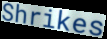
Shrikes